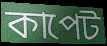
কাপেট